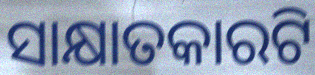
ସାକ୍ଷାତକାରଟି